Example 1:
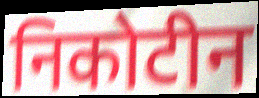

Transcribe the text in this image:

निकोटीन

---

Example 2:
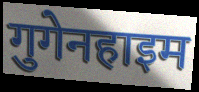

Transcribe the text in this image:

गुगेनहाइम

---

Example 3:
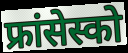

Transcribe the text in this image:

फ्रांसेस्को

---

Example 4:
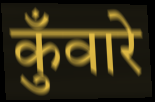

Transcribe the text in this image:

कुँवारे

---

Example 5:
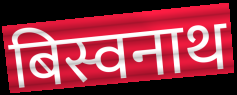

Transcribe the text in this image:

बिस्वनाथ